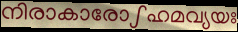
നിരാകാരോഽഹമവ്യയഃ